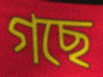
গছে